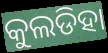
କୁଲଡିହା